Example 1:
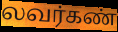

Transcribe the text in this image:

லவர்கண்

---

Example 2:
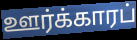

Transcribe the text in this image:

ஊர்க்காரப்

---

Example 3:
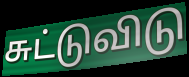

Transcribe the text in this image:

சுட்டுவிடு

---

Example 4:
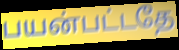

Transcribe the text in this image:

பயன்பட்டதே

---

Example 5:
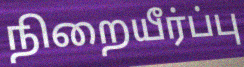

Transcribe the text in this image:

நிறையீர்ப்பு